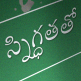
స్నిగ్ధతతో